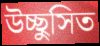
উচ্ছুসিত